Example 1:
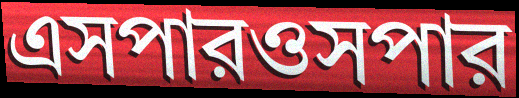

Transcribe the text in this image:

এসপারওসপার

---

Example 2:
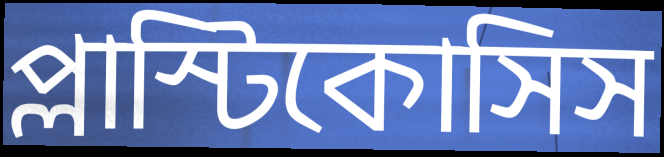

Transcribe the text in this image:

প্লাস্টিকোসিস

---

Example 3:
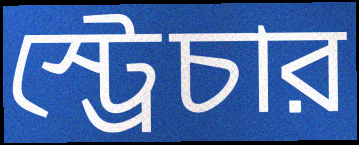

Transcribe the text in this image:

স্ট্রেচার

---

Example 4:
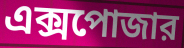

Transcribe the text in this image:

এক্সপোজার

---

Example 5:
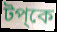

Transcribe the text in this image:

টপ্কে